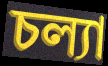
চল্যা